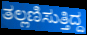
ತಲ್ಲಣಿಸುತ್ತಿದ್ದ